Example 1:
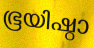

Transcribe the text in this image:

ഭൂയിഷ്ഠാ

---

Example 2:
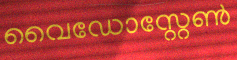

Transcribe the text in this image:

വൈഡോസ്റ്റേൺ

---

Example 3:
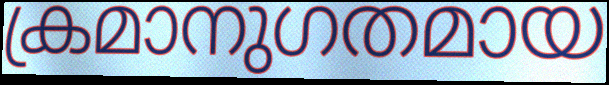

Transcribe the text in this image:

ക്രമാനുഗതമായ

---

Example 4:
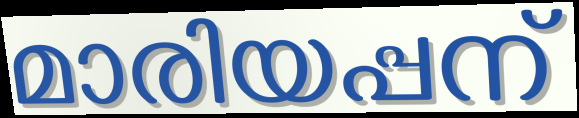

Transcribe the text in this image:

മാരിയപ്പന്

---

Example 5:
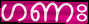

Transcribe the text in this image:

ഗണഃ